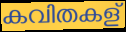
കവിതകള്